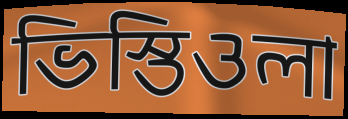
ভিস্তিওলা